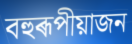
বহুৰূপীয়াজন